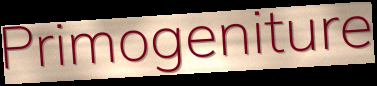
Primogeniture